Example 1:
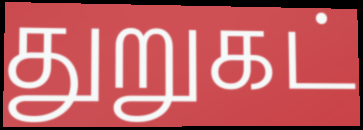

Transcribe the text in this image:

துறுகட்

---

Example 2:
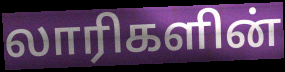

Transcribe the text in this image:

லாரிகளின்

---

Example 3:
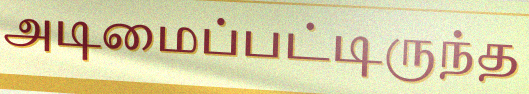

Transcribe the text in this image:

அடிமைப்பட்டிருந்த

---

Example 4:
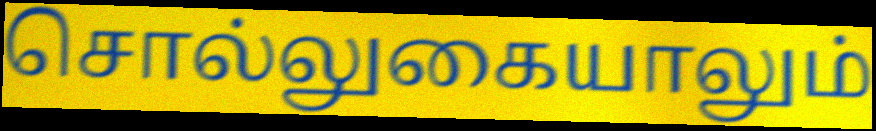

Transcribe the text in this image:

சொல்லுகையாலும்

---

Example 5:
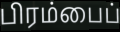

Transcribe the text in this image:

பிரம்பைப்